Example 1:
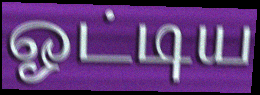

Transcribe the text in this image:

ஓட்டிய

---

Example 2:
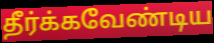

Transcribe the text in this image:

தீர்க்கவேண்டிய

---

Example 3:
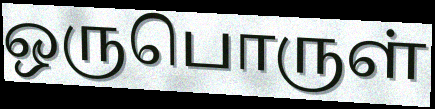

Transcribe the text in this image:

ஒருபொருள்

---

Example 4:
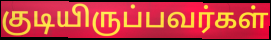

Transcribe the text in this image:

குடியிருப்பவர்கள்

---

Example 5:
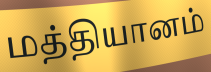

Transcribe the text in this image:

மத்தியானம்